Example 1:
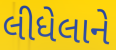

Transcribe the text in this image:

લીધેલાને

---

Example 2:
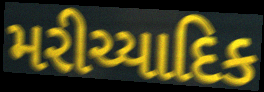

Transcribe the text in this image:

મરીચ્યાદિક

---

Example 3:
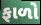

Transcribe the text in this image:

ફાળો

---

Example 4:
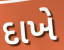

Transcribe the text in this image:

દાખે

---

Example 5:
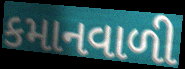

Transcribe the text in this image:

કમાનવાળી